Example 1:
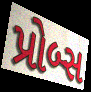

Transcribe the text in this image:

પ્રોબ્સ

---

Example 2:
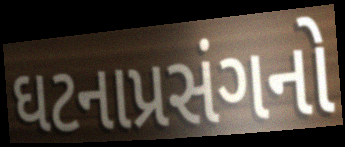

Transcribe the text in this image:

ઘટનાપ્રસંગનો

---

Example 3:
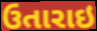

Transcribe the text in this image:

ઉતારાઇ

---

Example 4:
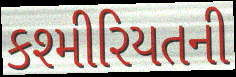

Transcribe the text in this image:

કશ્મીરિયતની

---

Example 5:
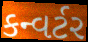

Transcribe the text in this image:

કન્વર્ટર